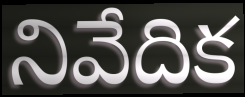
నివేదిక